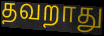
தவறாது